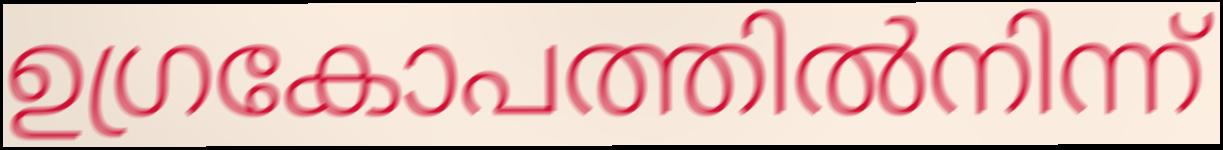
ഉഗ്രകോപത്തിൽനിന്ന്